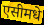
एसीमधे